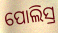
ପୋଲିସ୍ର